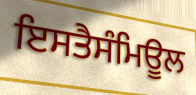
ਇਸਤੈਸੰਮਿਊਲ